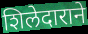
शिलेदाराने